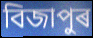
বিজাপুৰ